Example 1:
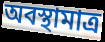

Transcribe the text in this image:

অবস্থামাত্র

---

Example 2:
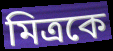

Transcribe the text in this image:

মিত্রকে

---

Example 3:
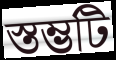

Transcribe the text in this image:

স্তম্ভটি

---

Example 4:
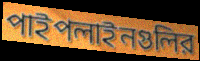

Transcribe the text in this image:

পাইপলাইনগুলির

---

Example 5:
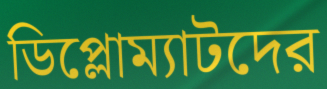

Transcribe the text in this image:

ডিপ্লোম্যাটদের